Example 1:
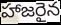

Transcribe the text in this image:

హాజరైన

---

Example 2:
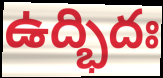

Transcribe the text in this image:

ఉద్భిదః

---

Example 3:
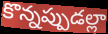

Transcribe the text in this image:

కొన్నప్పుడల్లా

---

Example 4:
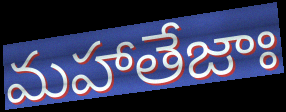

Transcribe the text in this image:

మహాతేజాః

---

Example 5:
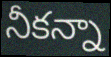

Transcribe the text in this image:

నీకన్నా